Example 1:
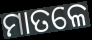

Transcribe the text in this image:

ମାତଳେ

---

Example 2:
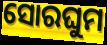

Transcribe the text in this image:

ସୋରଘୁମ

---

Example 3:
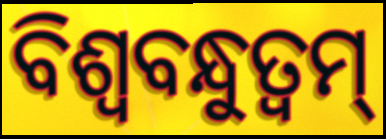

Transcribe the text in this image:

ବିଶ୍ଵବନ୍ଧୁତ୍ଵମ୍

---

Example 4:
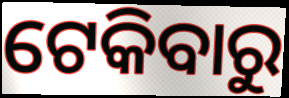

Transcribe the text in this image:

ଟେକିବାରୁ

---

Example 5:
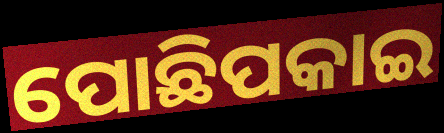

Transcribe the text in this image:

ପୋଛିପକାଇ